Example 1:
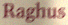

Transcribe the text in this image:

Raghus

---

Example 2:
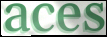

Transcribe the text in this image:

aces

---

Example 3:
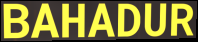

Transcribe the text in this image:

BAHADUR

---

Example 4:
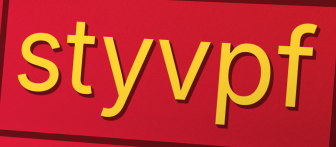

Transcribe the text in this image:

styvpf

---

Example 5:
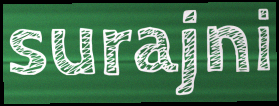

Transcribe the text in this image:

surajni